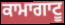
ਕਾਮਾਗਾਟੂ